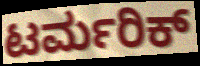
ಟರ್ಮರಿಕ್